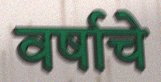
वर्षाचे